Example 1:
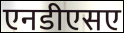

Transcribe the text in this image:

एनडीएसए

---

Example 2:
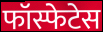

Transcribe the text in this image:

फॉस्फेटेस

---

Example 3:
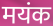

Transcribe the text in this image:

मयंक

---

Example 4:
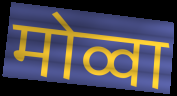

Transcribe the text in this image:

मोव्वा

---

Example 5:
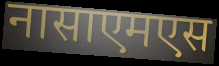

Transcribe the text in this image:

नासाएमएस